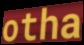
otha